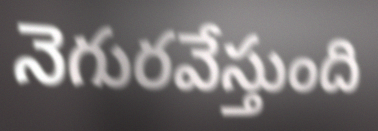
నెగురవేస్తుంది